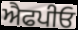
ਐਫਪੀਓ